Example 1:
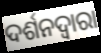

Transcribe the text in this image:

ଦର୍ଶନଦ୍ୱାରା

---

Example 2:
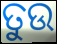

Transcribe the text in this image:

ତୁଉ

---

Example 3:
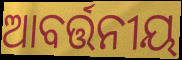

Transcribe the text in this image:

ଆବର୍ତ୍ତନୀୟ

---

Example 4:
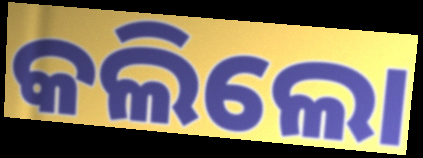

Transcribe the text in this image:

କଲିଲୋ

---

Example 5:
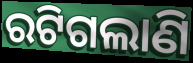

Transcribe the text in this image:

ରଟିଗଲାଣି